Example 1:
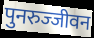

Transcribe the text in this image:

पुनरुज्‍जीवन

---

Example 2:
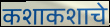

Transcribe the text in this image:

कशाकशाचे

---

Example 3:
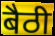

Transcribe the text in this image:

बैठी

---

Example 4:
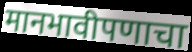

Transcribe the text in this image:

मानभावीपणाचा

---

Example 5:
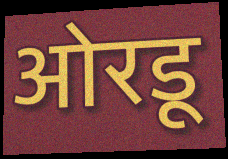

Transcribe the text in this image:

ओरडू